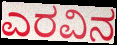
ಎರವಿನ